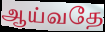
ஆய்வதே